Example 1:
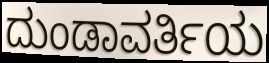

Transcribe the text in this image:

ದುಂಡಾವರ್ತಿಯ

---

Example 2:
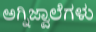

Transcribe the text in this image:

ಅಗ್ನಿಜ್ವಾಲೆಗಳು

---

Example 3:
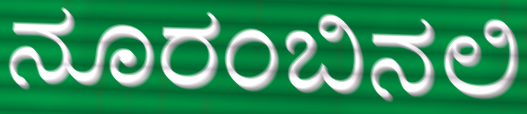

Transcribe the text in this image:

ನೂರಂಬಿನಲಿ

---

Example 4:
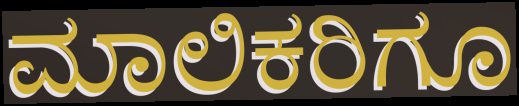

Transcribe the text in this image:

ಮಾಲಿಕರಿಗೂ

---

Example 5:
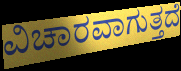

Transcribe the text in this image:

ವಿಚಾರವಾಗುತ್ತದೆ